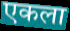
एकला